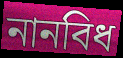
নানবিধ